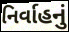
નિર્વાહનું